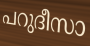
പറുദീസാ